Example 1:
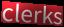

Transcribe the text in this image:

clerks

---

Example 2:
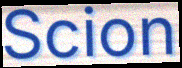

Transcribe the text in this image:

Scion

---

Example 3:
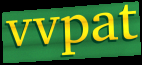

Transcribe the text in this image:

vvpat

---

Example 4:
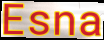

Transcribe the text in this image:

Esna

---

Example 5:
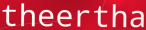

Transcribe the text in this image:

theertha